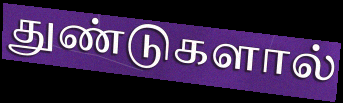
துண்டுகளால்